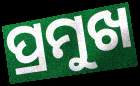
ପ୍ରମୁଖ